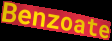
Benzoate